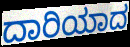
ದಾರಿಯಾದ